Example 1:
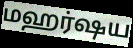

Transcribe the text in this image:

மஹர்ஷய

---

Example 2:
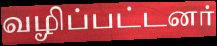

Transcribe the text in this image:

வழிப்பட்டனர்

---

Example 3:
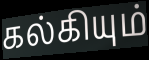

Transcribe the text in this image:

கல்கியும்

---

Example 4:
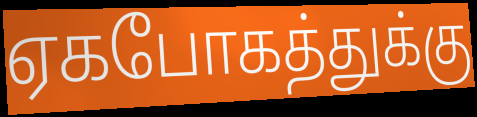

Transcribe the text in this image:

ஏகபோகத்துக்கு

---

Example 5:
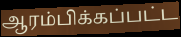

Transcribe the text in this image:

ஆரம்பிக்கப்பட்ட